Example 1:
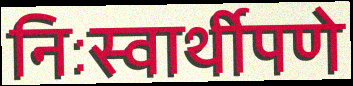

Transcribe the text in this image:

निःस्वार्थीपणे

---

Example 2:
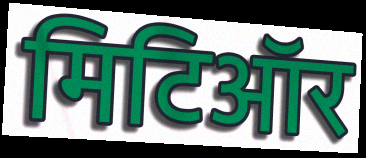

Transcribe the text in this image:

मिटिऑर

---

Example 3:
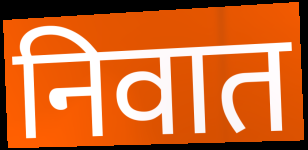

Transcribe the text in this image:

निवात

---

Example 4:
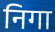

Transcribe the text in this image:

निगा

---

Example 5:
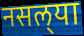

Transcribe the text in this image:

नसल्या